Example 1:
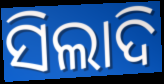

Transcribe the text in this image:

ସିଲାଦି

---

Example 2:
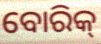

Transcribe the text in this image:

ବୋରିକ୍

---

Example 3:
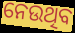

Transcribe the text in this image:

ନେଉଥିବ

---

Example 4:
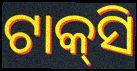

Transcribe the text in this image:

ଟାକ୍‍ସି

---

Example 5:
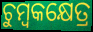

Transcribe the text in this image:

ଚୁମ୍ବକକ୍ଷେତ୍ର